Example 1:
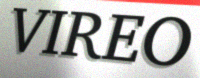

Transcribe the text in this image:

VIREO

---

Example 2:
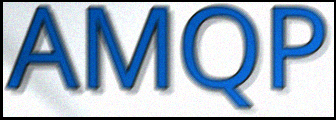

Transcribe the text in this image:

AMQP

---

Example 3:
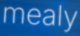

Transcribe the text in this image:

mealy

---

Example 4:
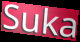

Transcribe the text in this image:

Suka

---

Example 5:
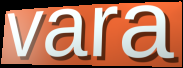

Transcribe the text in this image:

vara